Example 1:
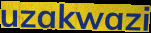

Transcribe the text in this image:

uzakwazi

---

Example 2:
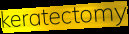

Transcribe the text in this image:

keratectomy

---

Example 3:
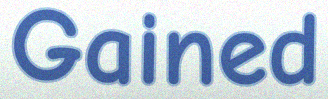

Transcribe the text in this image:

Gained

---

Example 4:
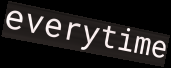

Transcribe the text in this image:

everytime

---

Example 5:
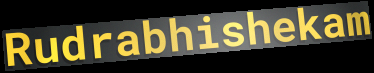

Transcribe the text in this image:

Rudrabhishekam